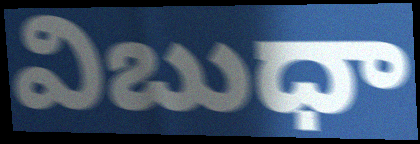
విబుధా